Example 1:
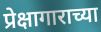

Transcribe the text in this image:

प्रेक्षागाराच्या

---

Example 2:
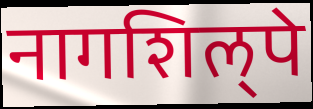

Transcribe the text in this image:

नागशिल्पे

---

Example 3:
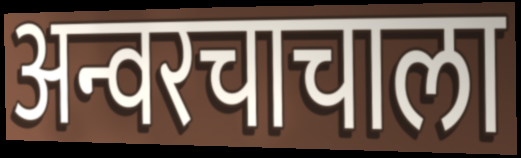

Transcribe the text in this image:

अन्वरचाचाला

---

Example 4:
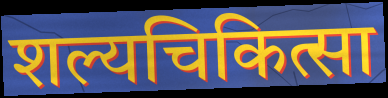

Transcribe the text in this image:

शल्‍यचिकित्‍सा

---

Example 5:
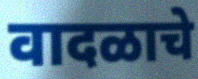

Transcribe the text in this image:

वादळाचे